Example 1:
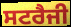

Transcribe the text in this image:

ਸਟਰੈਜੀ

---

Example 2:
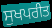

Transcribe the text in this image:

ਸੁਖਪਰੀਤ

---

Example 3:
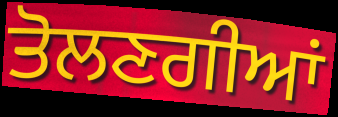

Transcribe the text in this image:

ਤੋਲਣਗੀਆਂ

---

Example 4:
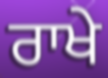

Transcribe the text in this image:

ਰਾਖੇ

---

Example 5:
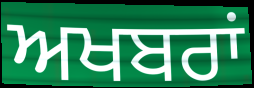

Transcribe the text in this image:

ਅਖਬਰਾਂ